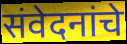
संवेदनांचे